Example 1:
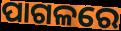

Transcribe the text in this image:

ପାଗଳରେ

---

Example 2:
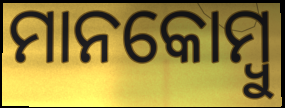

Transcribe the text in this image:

ମାନକୋମ୍ବୁ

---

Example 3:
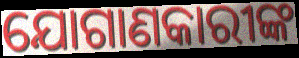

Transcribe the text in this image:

ଯୋଗାଣକାରୀଙ୍କ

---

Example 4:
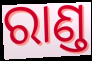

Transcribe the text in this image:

ରାଣ୍ଡ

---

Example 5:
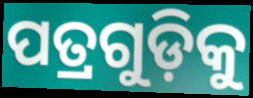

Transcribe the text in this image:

ପତ୍ରଗୁଡ଼ିକୁ